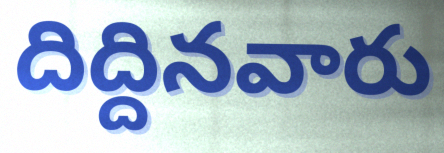
దిద్దినవారు